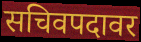
सचिवपदावर